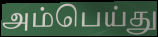
அம்பெய்து